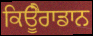
ਕਿਊੈਰਾਡਾਨ